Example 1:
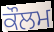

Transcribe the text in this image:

ਕੌਲਮ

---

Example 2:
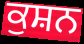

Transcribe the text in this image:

ਕੁਸ਼ਨ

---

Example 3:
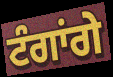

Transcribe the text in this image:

ਟੰਗਾਂਗੇ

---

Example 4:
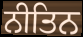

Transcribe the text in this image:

ਨੀਤਿਨ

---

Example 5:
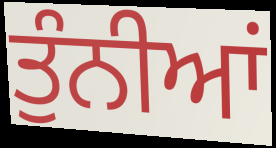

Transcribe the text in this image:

ਤੁੰਨੀਆਂ